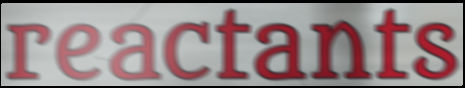
reactants